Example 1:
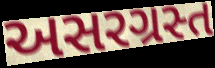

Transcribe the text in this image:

અસરગ્રસ્ત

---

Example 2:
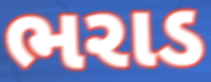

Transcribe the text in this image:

ભરાડ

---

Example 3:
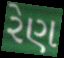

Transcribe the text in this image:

રેણ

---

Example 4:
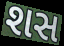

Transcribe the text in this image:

શસ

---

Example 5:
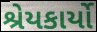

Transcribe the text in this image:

શ્રેયકાર્યો